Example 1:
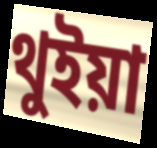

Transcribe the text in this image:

থুইয়া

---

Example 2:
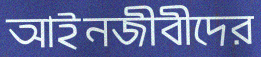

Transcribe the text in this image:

আইনজীবীদের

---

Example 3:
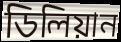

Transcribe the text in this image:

ডিলিয়ান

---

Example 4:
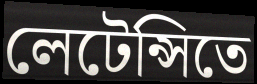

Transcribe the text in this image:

লেটেন্সিতে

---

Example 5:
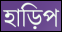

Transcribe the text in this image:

হাড়িপ